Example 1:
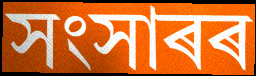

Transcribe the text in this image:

সংসাৰৰ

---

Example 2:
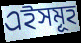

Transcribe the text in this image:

এইসমূহ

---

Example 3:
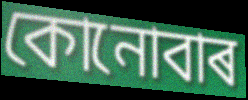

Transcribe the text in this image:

কোনোবাৰ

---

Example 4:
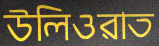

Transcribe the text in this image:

উলিওৱাত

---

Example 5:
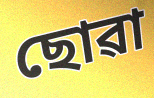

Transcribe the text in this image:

ছোৱা